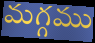
మగ్గము